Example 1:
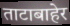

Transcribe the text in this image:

ताटाबाहेर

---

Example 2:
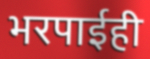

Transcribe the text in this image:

भरपाईही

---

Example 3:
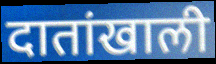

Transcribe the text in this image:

दातांखाली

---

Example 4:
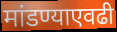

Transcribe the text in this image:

मांडण्याएवढी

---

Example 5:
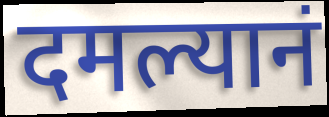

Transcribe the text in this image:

दमल्यानं